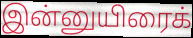
இன்னுயிரைக்